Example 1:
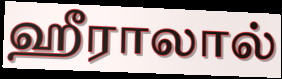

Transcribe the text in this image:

ஹீராலால்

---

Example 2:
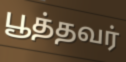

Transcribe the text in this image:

பூத்தவர்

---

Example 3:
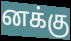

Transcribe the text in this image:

னக்கு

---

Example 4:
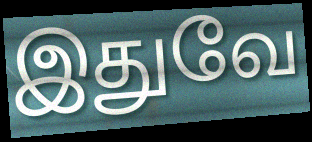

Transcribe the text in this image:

இதுவே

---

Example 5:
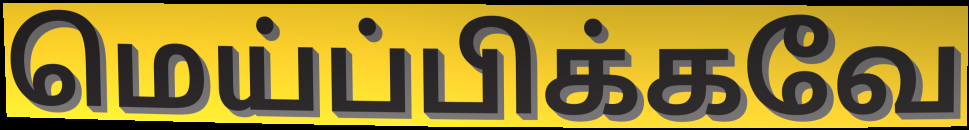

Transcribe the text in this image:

மெய்ப்பிக்கவே